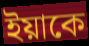
ইয়াকে